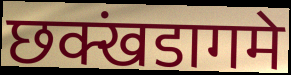
छक्खंडागमे